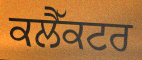
ਕਲੈੱਕਟਰ